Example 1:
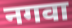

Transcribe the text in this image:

नगवा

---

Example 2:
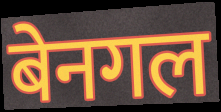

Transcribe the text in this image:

बेनगल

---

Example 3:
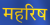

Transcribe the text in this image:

महरिष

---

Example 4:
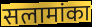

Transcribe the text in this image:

सलामांका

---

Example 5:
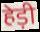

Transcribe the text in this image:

हेड़ी